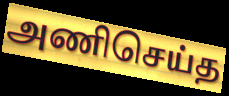
அணிசெய்த